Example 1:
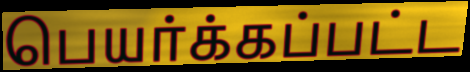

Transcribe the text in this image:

பெயர்க்கப்பட்ட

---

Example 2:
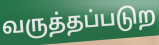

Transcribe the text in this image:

வருத்தப்படுற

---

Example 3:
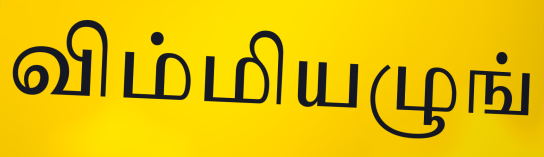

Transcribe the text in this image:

விம்மியழுங்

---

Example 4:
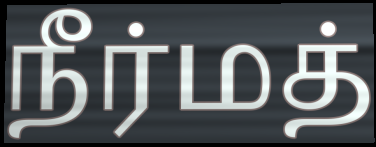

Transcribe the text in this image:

நீர்மத்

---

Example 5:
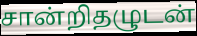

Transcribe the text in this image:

சான்றிதழுடன்